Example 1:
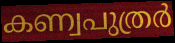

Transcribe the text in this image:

കണ്വപുത്രർ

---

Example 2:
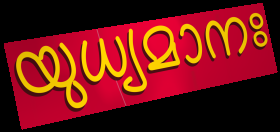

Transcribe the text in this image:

യുധ്യമാനഃ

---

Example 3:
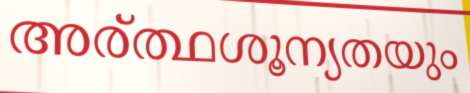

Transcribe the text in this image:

അര്ത്ഥശൂന്യതയും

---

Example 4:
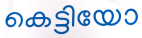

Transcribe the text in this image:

കെട്ടിയോ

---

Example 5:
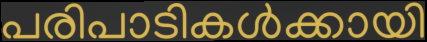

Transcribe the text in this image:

പരിപാടികൾക്കായി